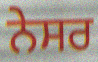
ਨੇਸਰ